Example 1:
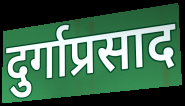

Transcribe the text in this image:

दुर्गाप्रसाद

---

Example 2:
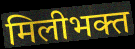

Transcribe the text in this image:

मिलीभक्त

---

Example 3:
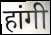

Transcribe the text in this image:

हांगी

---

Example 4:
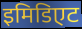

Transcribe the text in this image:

इमिडिएट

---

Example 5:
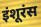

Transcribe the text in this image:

इंशूरंस